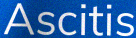
Ascitis